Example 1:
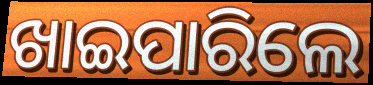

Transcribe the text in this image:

ଖାଇପାରିଲେ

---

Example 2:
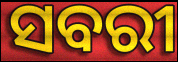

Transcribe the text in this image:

ସବରୀ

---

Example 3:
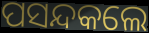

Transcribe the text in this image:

ପସନ୍ଦକଲେ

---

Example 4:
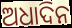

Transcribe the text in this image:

ଅଧାଦିନ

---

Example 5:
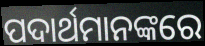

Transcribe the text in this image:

ପଦାର୍ଥମାନଙ୍କରେ